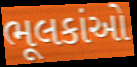
ભૂલકાંઓ